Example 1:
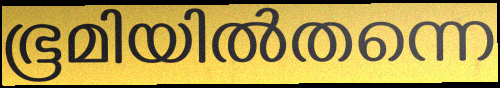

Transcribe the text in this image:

ഭൂമിയിൽതന്നെ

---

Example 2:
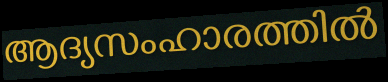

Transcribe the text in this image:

ആദ്യസംഹാരത്തിൽ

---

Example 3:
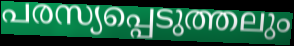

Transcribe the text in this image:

പരസ്യപ്പെടുത്തലും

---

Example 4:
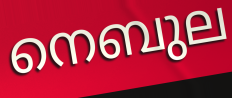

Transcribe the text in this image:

നെബുല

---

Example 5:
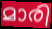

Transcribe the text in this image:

മാരി